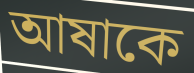
আষাকে